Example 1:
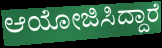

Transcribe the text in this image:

ಆಯೋಜಿಸಿದ್ದಾರೆ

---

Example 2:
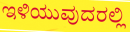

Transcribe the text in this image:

ಇಳಿಯುವುದರಲ್ಲಿ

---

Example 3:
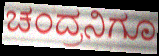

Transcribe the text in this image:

ಚಂದ್ರನಿಗೂ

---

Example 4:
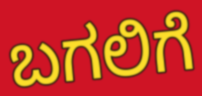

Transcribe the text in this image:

ಬಗಲಿಗೆ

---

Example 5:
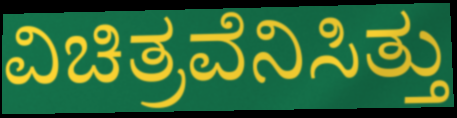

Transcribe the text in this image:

ವಿಚಿತ್ರವೆನಿಸಿತ್ತು